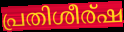
പ്രതിശീര്ഷ